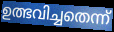
ഉത്ഭവിച്ചതെന്ന്